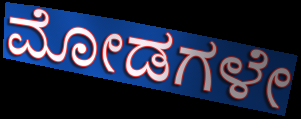
ಮೋಡಗಳೇ